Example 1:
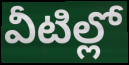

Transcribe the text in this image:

వీటిల్లో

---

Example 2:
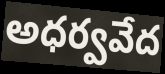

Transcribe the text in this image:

అధర్వవేద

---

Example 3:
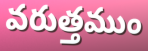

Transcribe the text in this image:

వరుత్తముం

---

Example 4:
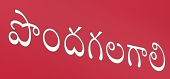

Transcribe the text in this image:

పొందగలగాలి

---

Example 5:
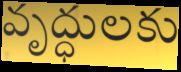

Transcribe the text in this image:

వృద్ధులకు